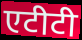
एटीटी